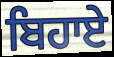
ਬਿਹਾਏ